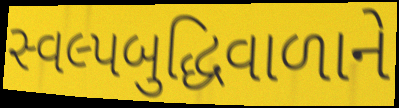
સ્વલ્પબુદ્ધિવાળાને